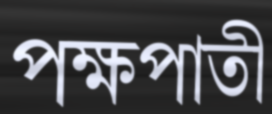
পক্ষপাতী